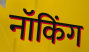
नॉकिंग